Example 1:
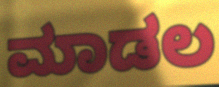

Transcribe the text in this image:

ಮಾಡಲ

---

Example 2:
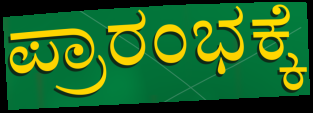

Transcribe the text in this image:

ಪ್ರಾರಂಭಕ್ಕೆ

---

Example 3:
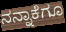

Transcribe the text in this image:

ನನ್ನಾಕೆಗೂ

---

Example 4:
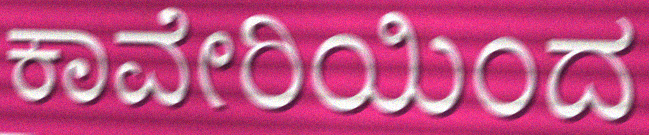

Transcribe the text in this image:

ಕಾವೇರಿಯಿಂದ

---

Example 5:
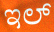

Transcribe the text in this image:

ಇಲ್